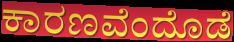
ಕಾರಣವೆಂದೊಡೆ